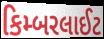
કિમ્બરલાઈટ